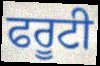
ਫਰੂਟੀ